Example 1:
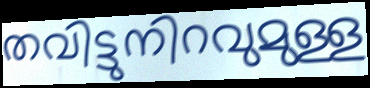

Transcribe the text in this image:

തവിട്ടുനിറവുമുള്ള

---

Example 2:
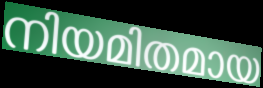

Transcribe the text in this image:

നിയമിതമായ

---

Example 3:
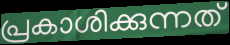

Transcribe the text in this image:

പ്രകാശിക്കുന്നത്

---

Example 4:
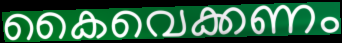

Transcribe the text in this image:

കൈവെക്കണം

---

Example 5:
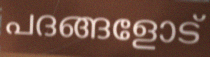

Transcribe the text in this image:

പദങ്ങളോട്